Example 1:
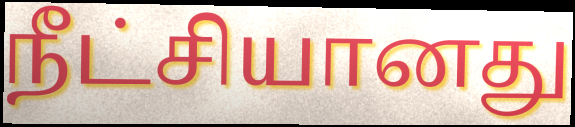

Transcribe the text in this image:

நீட்சியானது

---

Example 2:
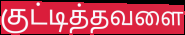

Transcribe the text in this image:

குட்டித்தவளை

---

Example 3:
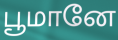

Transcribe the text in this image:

பூமானே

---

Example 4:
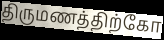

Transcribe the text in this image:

திருமணத்திற்கோ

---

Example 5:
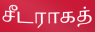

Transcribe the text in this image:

சீடராகத்